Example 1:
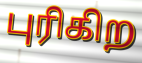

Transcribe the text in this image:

புரிகிற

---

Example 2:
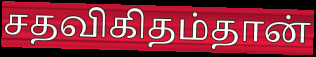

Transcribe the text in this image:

சதவிகிதம்தான்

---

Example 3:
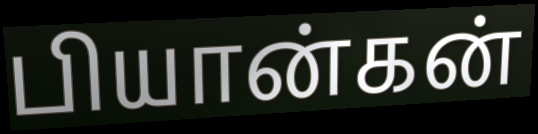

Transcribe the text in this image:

பியான்கன்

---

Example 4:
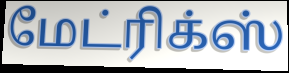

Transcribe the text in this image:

மேட்ரிக்ஸ்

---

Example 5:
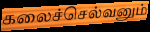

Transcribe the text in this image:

கலைச்செல்வனும்